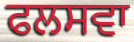
ਫਲਸਵਾ